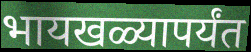
भायखळ्यापर्यंत